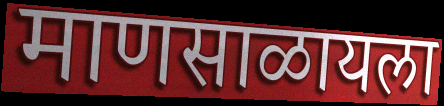
माणसाळायला